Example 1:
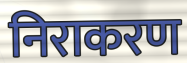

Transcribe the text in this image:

निराकरण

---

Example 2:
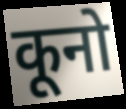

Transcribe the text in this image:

कूनो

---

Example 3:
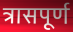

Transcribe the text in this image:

त्रासपूर्ण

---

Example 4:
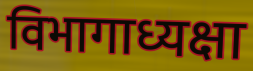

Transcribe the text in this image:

विभागाध्यक्षा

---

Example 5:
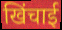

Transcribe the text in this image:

खिंचाई